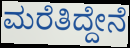
ಮರೆತಿದ್ದೇನೆ